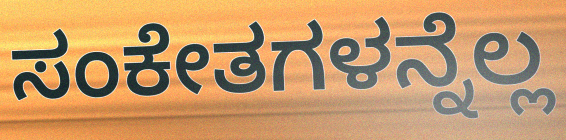
ಸಂಕೇತಗಳನ್ನೆಲ್ಲ